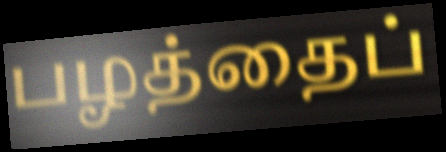
பழத்தைப்